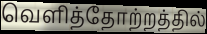
வெளித்தோற்றத்தில்